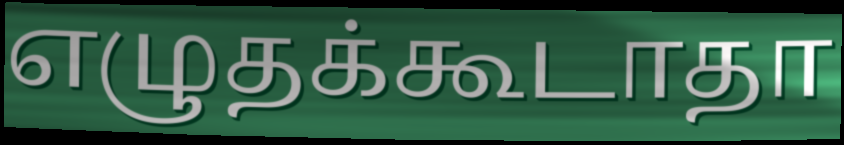
எழுதக்கூடாதா